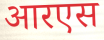
आरएस